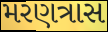
મરણત્રાસ